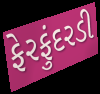
ફેરફુંદરડી